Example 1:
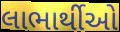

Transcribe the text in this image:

લાભાર્થીઓ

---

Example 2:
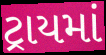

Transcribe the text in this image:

ટ્રાયમાં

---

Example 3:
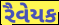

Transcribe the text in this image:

રૈવેયક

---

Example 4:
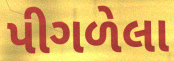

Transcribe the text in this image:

પીગળેલા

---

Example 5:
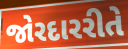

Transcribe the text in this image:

જોરદારરીતે